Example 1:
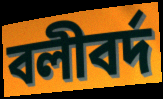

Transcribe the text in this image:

বলীবর্দ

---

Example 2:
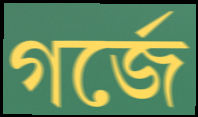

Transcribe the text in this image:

গর্জে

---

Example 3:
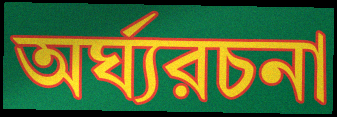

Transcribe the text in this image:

অর্ঘ্যরচনা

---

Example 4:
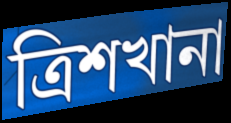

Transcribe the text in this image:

ত্রিশখানা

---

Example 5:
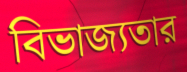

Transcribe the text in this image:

বিভাজ্যতার